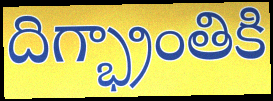
దిగ్భ్రాంతికి